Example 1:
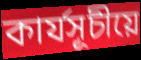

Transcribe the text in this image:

কাৰ্যসূচীয়ে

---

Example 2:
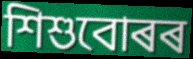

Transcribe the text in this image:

শিশুবোৰৰ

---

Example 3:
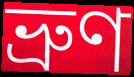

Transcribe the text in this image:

ভ্ৰুণ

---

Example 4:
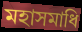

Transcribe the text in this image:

মহাসমাধি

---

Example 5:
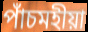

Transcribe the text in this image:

পাঁচমহীয়া